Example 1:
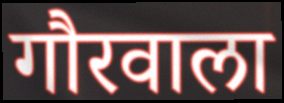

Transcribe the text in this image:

गौरवाला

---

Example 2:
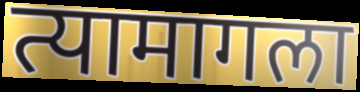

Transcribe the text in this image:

त्यामागला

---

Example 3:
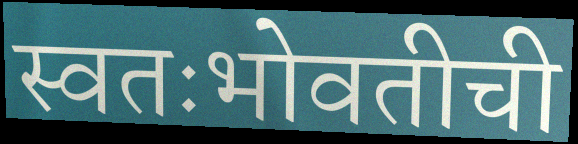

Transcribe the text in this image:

स्वतःभोवतीची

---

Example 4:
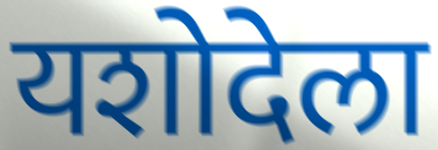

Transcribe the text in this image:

यशोदेला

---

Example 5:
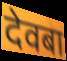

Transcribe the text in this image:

देवबा